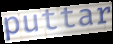
puttar